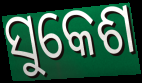
ସୁକେଶ